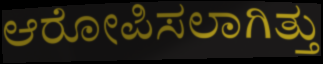
ಆರೋಪಿಸಲಾಗಿತ್ತು